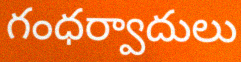
గంధర్వాదులు